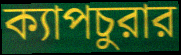
ক্যাপচুরার